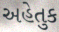
અહેતુક